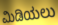
ಮಿಡಿಯಲು